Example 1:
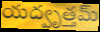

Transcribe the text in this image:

యద్వృత్తమ్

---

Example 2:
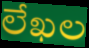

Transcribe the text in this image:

లేఖల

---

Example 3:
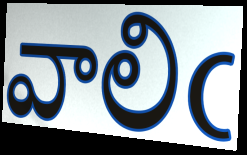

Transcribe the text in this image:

వాలిఁ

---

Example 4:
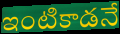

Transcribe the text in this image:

ఇంటికాడనే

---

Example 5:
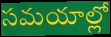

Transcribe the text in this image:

సమయాల్లో